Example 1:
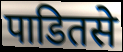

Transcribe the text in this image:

पाडितसे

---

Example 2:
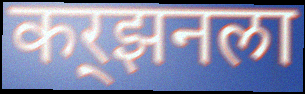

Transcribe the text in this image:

कर्झनला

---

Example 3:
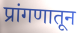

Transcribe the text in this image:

प्रांगणातून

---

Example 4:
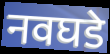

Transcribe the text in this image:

नवघडे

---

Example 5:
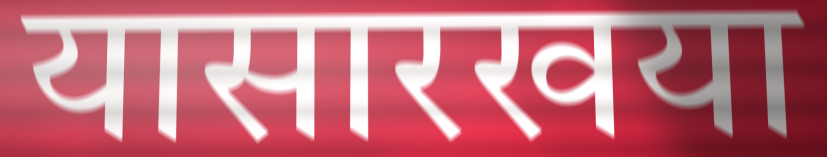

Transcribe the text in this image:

यासारखया